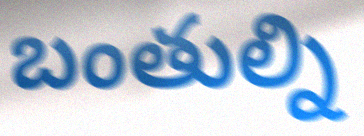
బంతుల్ని